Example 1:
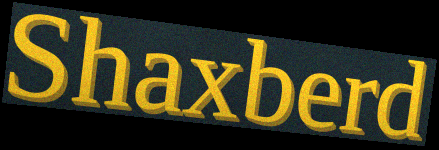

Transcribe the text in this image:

Shaxberd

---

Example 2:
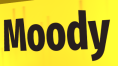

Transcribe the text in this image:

Moody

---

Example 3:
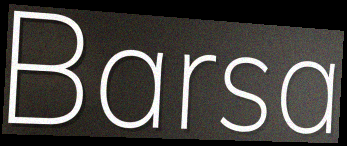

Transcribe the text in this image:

Barsa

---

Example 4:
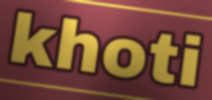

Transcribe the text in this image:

khoti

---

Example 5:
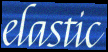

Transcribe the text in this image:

elastic